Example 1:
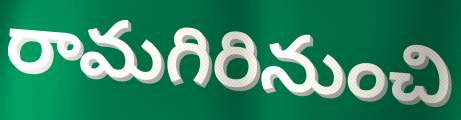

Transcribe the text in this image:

రామగిరినుంచి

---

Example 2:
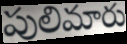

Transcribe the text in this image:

పులిమారు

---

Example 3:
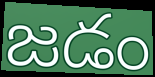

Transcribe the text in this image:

జడం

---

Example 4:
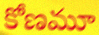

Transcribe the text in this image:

కోణమూ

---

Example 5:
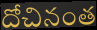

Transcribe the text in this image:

దోచినంత